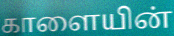
காளையின்